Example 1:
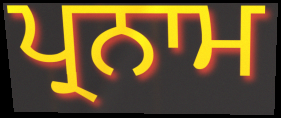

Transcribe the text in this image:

ਪ੍ਰਨਾਮ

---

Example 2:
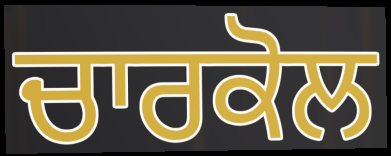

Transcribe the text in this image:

ਚਾਰਕੋਲ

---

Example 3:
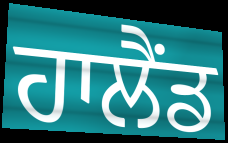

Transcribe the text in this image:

ਹਾਲੈਂਡ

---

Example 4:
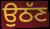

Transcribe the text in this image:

ਉਠੱਣ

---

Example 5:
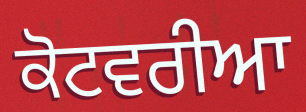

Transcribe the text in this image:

ਕੋਟਵਰੀਆ